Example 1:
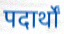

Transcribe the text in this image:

पदार्थों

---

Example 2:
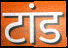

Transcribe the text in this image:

टांड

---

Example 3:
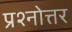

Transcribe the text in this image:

प्रश्नोत्तर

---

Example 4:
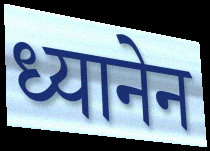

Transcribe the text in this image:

ध्यानेन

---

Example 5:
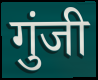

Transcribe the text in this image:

गुंजी